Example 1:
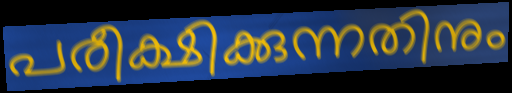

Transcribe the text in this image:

പരീക്ഷിക്കുന്നതിനും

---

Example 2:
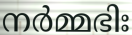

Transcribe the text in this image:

നർമ്മഭിഃ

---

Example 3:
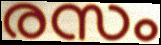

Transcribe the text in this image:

രസം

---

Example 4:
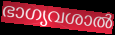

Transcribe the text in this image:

ഭാഗ്യവശാൽ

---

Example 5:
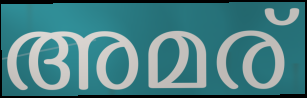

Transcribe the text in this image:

അമര്